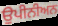
ਉਪੀਨੀਅਨ